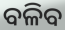
ବଳିବ